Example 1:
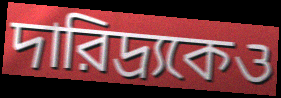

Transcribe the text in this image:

দারিদ্র্যকেও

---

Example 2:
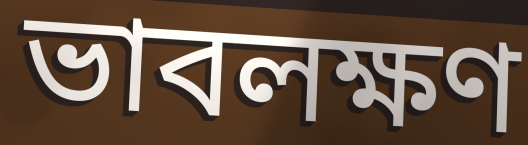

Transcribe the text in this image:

ভাবলক্ষণ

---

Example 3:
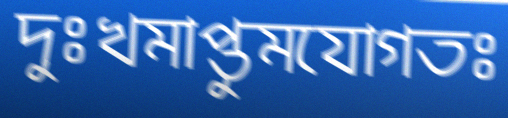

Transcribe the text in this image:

দুঃখমাপ্তুমযোগতঃ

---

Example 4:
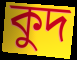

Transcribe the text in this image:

কুদ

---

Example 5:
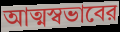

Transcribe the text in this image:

আত্মস্বভাবের